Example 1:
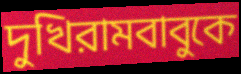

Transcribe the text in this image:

দুখিরামবাবুকে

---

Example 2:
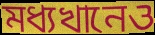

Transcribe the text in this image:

মধ্যখানেও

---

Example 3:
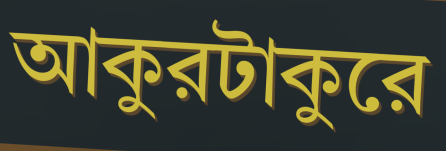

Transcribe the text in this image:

আকুরটাকুরে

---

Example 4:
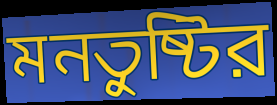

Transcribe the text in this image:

মনতুষ্টির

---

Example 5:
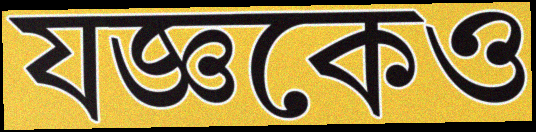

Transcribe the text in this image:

যজ্ঞকেও